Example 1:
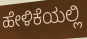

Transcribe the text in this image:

ಹೇಳಿಕೆಯಲ್ಲಿ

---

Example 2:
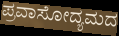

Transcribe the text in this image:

ಪ್ರವಾಸೋದ್ಯಮದ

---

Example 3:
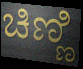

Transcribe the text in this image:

ಚಿಣ್ಣಿ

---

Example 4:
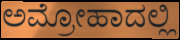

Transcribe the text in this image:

ಅಮ್ರೋಹಾದಲ್ಲಿ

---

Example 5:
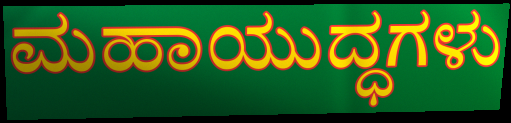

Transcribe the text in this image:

ಮಹಾಯುದ್ಧಗಳು